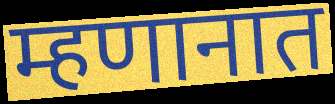
म्हणानात